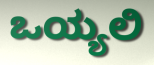
ಒಯ್ಯಲಿ